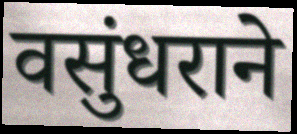
वसुंधराने